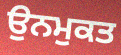
ਉਨਮੁਕਤ